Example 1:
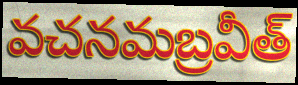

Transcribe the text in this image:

వచనమబ్రవీత్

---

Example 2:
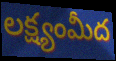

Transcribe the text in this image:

లక్ష్యంమీద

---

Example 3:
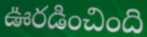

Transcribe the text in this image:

ఊరడించింది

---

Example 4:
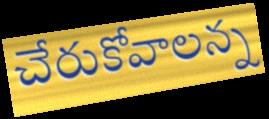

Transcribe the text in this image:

చేరుకోవాలన్న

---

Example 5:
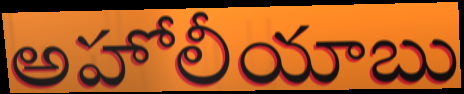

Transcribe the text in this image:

అహోలీయాబు